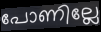
പോണില്ലേ